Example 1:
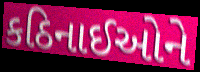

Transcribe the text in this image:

કઠિનાઈઓને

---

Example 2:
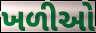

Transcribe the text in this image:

ખળીઓ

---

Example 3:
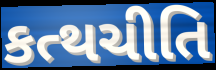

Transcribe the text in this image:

કત્થચીતિ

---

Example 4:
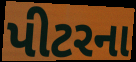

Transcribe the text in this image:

પીટરના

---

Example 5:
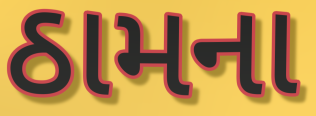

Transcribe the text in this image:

ઠામના